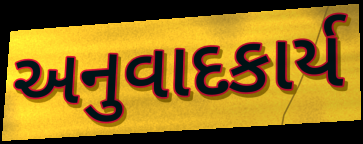
અનુવાદકાર્ય